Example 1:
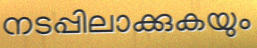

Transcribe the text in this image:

നടപ്പിലാക്കുകയും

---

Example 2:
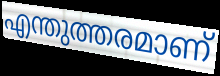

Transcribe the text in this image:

എന്തുത്തരമാണ്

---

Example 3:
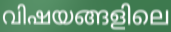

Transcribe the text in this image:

വിഷയങ്ങളിലെ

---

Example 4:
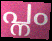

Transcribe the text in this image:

പ്നം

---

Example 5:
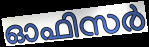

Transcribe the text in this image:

ഓഫിസർ